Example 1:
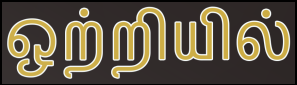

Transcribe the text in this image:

ஒற்றியில்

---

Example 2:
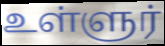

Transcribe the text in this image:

உள்ளுர்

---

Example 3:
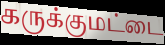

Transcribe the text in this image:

கருக்குமட்டை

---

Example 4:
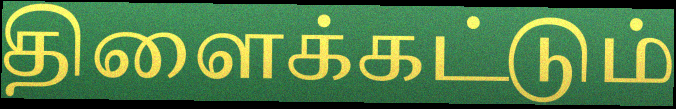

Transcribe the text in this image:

திளைக்கட்டும்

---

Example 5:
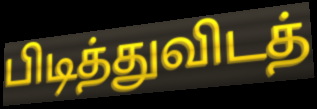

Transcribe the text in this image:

பிடித்துவிடத்